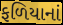
ફળિયાનાં